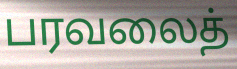
பரவலைத்